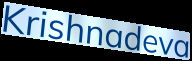
Krishnadeva